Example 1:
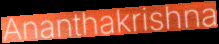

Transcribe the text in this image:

Ananthakrishna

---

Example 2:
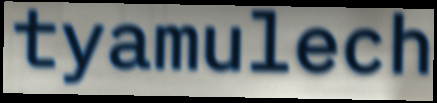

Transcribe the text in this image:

tyamulech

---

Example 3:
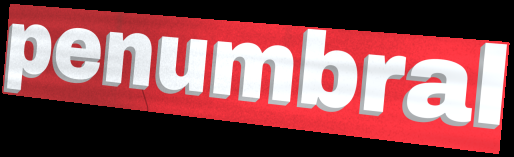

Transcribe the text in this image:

penumbral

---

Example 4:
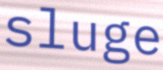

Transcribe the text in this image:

sluge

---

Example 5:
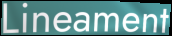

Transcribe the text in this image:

Lineament